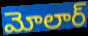
మోలార్